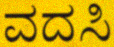
ವದಸಿ